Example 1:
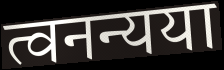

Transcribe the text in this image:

त्वनन्यया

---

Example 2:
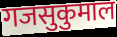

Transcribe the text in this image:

गजसुकुमाल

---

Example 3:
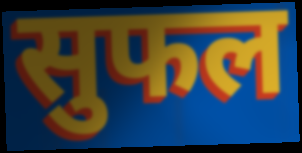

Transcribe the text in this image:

सुफल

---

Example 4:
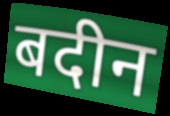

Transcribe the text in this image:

बदीन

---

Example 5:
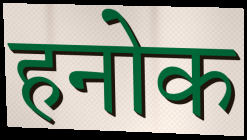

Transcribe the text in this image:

हनोक